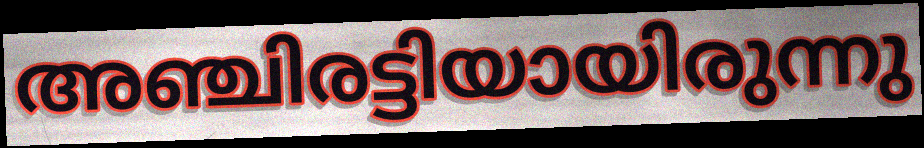
അഞ്ചിരട്ടിയായിരുന്നു